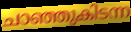
ചാഞ്ഞുകിടന്ന